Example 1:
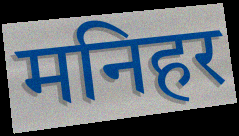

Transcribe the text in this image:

मनिहर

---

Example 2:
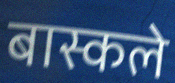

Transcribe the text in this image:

बास्कले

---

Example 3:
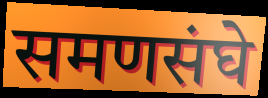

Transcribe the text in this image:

समणसंघे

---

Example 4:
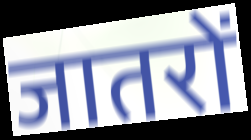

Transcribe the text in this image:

जातरों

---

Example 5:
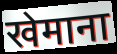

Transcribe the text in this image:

खेमाना